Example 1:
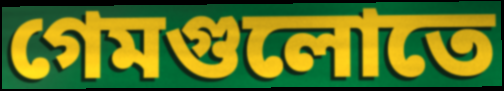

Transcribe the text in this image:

গেমগুলোতে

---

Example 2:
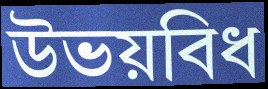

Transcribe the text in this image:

উভয়বিধ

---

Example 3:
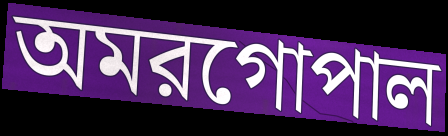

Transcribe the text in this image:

অমরগোপাল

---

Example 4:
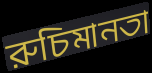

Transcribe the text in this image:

রুচিমানতা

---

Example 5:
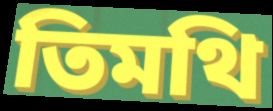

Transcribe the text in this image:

তিমথি